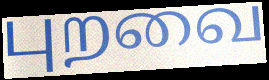
புறவை